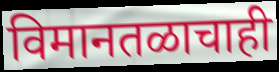
विमानतळाचाही